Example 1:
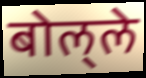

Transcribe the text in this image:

बोल्ले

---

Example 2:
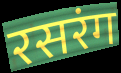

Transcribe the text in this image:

रसरंग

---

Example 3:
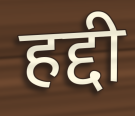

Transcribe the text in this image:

हद्दी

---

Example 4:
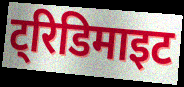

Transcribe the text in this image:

ट्रिडिमाइट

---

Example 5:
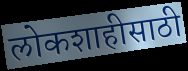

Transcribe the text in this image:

लोकशाहीसाठी